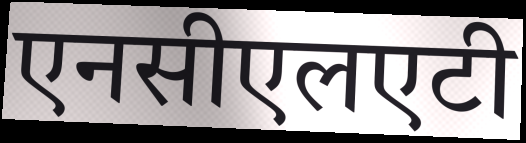
एनसीएलएटी